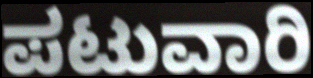
ಪಟುವಾರಿ